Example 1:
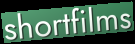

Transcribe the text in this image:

shortfilms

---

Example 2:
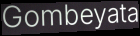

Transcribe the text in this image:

Gombeyata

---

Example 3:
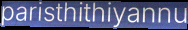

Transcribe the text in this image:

paristhithiyannu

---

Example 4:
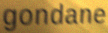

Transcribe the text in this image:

gondane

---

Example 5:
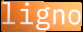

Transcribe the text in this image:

ligno